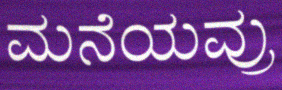
ಮನೆಯವ್ರು